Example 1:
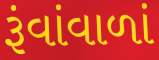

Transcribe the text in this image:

રૂંવાંવાળાં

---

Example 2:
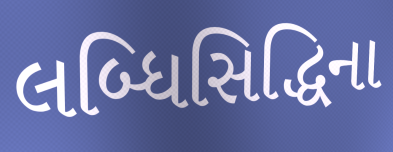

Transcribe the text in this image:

લબ્ધિસિદ્ધિના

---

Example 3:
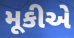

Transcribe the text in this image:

મૂકીએ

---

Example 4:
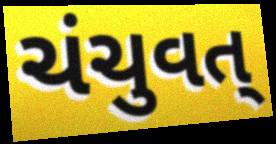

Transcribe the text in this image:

ચંચુવત્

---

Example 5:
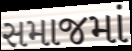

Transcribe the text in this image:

સમાજમાં